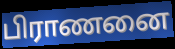
பிராணனை